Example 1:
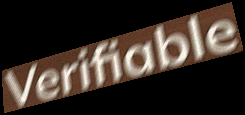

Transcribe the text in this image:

Verifiable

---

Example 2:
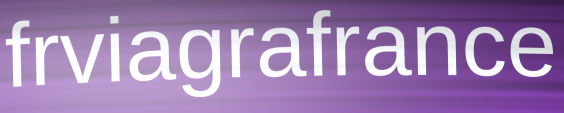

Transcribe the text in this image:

frviagrafrance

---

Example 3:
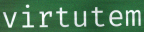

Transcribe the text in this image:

virtutem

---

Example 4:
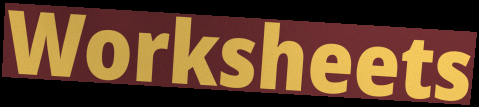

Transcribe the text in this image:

Worksheets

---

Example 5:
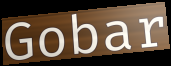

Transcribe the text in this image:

Gobar